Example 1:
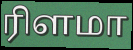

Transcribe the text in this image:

ரிளமா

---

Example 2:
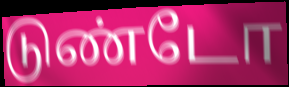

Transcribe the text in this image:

டுண்டோ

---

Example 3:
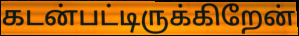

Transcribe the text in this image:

கடன்பட்டிருக்கிறேன்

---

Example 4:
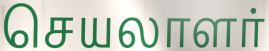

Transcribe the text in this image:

செயலாளர்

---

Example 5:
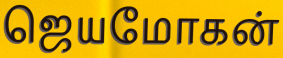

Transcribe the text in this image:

ஜெயமோகன்